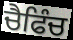
ਚੈਫਿੰਚ